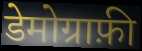
डेमोग्राफ़ी